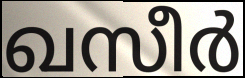
ഖസീർ